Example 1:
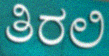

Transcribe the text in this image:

ತಿರಲಿ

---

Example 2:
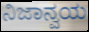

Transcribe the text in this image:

ನಿಜಾನ್ವಯ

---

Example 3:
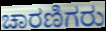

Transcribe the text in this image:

ಚಾರಣಿಗರು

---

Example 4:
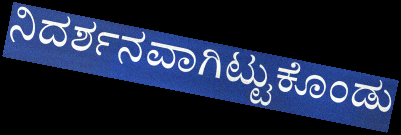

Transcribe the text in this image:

ನಿದರ್ಶನವಾಗಿಟ್ಟುಕೊಂಡು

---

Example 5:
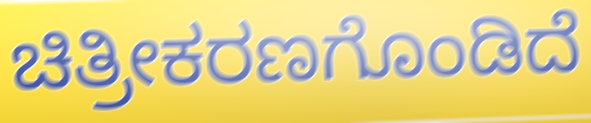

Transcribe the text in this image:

ಚಿತ್ರೀಕರಣಗೊಂಡಿದೆ